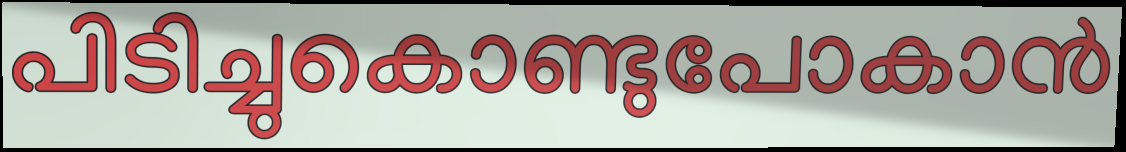
പിടിച്ചുകൊണ്ടുപോകാൻ